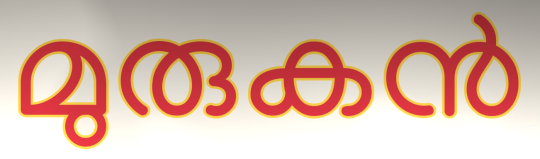
മുരുകൻ